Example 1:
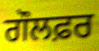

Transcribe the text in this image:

ਗੌਲਫ਼ਰ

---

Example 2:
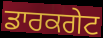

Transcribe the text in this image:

ਡਾਰਕਗੇਟ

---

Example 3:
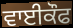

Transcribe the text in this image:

ਵਾਈਕੌਫ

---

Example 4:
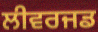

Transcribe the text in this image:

ਲੀਵਰਜਡ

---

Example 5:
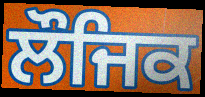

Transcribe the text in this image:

ਲੌਜਿਕ